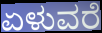
ಏಳುವರೆ